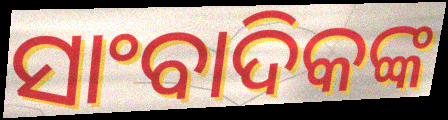
ସାଂବାଦିକଙ୍କ